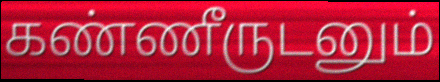
கண்ணீருடனும்